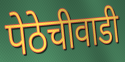
पेठेचीवाडी